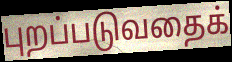
புறப்படுவதைக்